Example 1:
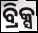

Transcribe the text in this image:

ବ୍ରିକ୍ସ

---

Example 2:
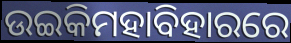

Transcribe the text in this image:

ଉଇକିମହାବିହାରରେ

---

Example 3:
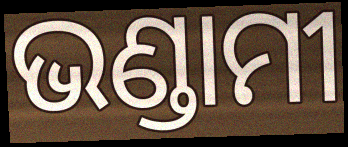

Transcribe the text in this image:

ଭଣ୍ଡାମୀ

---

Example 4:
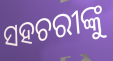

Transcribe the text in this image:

ସହଚରୀଙ୍କୁ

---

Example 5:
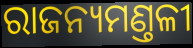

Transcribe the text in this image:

ରାଜନ୍ୟମଣ୍ତଳୀ